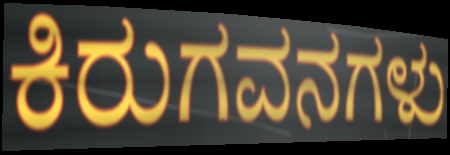
ಕಿರುಗವನಗಳು